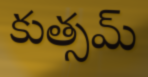
కుత్సమ్